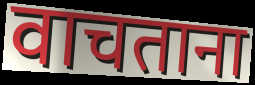
वाचताना